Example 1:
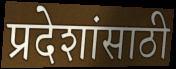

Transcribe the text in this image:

प्रदेशांसाठी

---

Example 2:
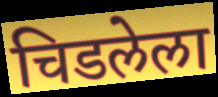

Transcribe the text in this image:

चिडलेला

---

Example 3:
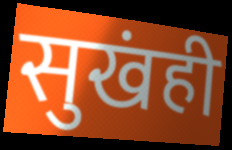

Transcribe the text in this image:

सुखंही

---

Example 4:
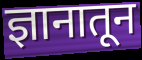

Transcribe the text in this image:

ज्ञानातून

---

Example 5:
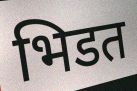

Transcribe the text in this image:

भिडत